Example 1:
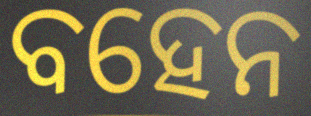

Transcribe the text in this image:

ବହେନ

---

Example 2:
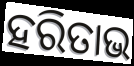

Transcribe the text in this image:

ହରିତାଭ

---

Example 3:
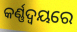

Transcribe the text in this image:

କର୍ଣ୍ଣଦ୍ୱୟରେ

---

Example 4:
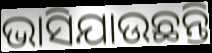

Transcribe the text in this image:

ଭାସିଯାଉଛନ୍ତି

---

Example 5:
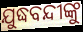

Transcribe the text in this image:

ଯୁଦ୍ଧବନ୍ଦୀଙ୍କୁ